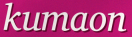
kumaon